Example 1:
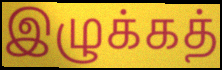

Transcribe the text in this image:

இழுக்கத்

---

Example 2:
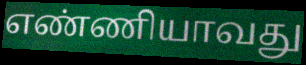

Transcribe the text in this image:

எண்ணியாவது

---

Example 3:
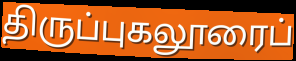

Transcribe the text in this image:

திருப்புகலூரைப்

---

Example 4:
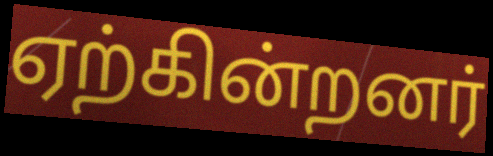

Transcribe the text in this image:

ஏற்கின்றனர்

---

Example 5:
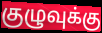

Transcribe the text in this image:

குழுவுக்கு